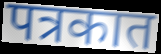
पत्रकात